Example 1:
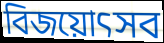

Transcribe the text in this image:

বিজয়োৎসব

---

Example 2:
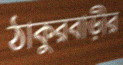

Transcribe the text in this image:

ঠাকুরবাড়ীর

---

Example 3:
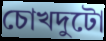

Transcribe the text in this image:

চোখদুটো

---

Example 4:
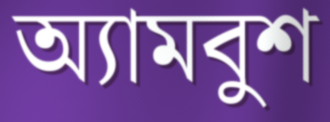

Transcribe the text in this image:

অ্যামবুশ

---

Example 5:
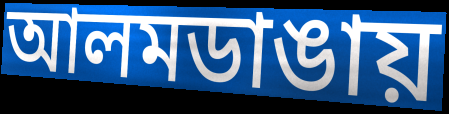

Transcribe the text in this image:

আলমডাঙায়